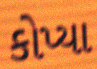
કોપ્યા